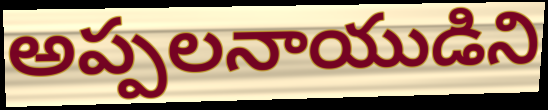
అప్పలనాయుడిని